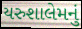
યરુશાલેમનું